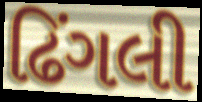
ઢિંગલી